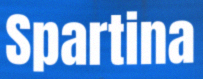
Spartina